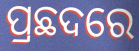
ପ୍ରଛଦରେ